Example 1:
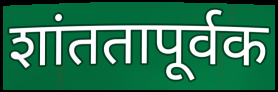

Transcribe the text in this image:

शांततापूर्वक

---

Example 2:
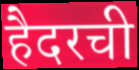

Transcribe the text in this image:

हैदरची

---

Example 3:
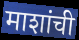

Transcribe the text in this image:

माशांची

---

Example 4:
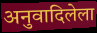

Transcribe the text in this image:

अनुवादिलेला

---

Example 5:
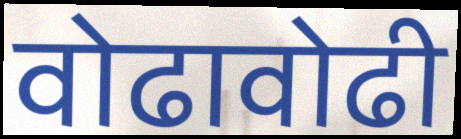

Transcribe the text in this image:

वोढावोढी